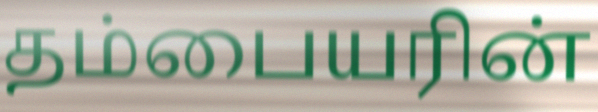
தம்பையரின்